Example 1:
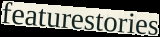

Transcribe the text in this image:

featurestories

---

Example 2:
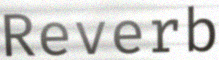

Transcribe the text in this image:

Reverb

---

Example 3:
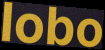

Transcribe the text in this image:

lobo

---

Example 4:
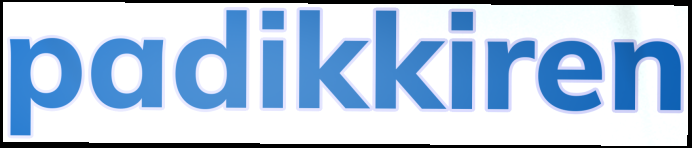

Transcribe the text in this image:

padikkiren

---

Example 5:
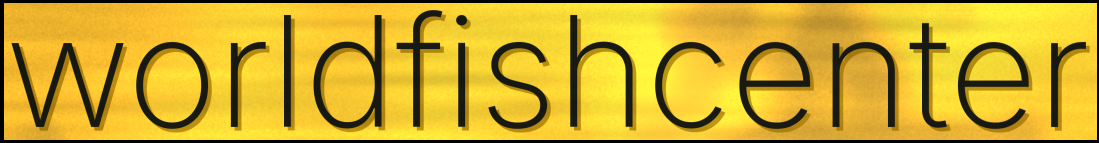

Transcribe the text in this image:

worldfishcenter